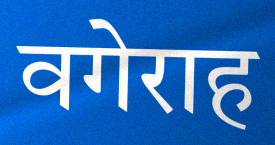
वगेराह